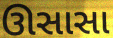
ઊસાસા